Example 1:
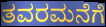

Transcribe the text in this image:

ತವರಮನೆಗೆ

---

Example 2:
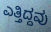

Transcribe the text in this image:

ಎತ್ತಿದ್ದವು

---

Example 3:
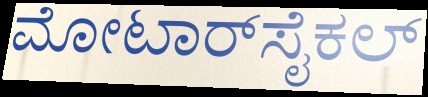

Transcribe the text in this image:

ಮೋಟಾರ್‌ಸೈಕಲ್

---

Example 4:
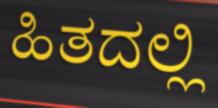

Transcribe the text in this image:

ಹಿತದಲ್ಲಿ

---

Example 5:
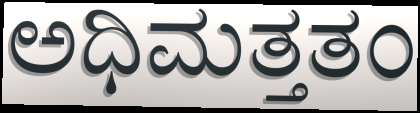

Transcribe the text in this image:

ಅಧಿಮತ್ತತಂ